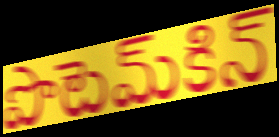
పొటెమ్‌కిన్